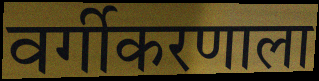
वर्गीकरणाला